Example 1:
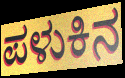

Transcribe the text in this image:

ಪಳುಕಿನ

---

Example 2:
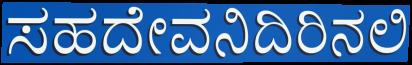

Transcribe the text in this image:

ಸಹದೇವನಿದಿರಿನಲಿ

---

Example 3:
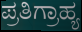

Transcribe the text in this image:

ಪ್ರತಿಗ್ರಾಹ್ಯ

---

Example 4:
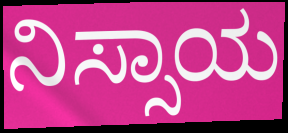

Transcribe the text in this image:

ನಿಸ್ಸಾಯ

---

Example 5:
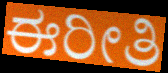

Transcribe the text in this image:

ಈರೀತಿ